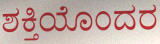
ಶಕ್ತಿಯೊಂದರ